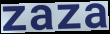
zaza